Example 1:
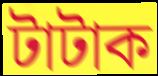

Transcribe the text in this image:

টাটাক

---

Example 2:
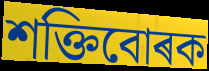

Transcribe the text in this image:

শক্তিবোৰক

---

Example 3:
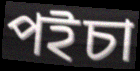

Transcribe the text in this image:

পইচা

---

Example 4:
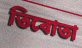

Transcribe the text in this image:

তিৰোতা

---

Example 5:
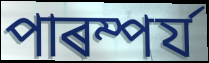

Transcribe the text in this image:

পাৰম্পৰ্য